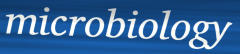
microbiology